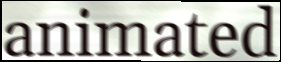
animated